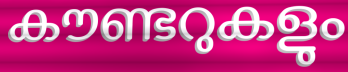
കൗണ്ടറുകളും